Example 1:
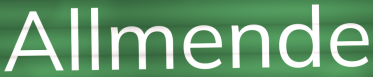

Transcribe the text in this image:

Allmende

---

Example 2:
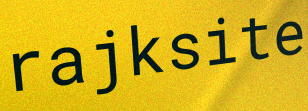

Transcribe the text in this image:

rajksite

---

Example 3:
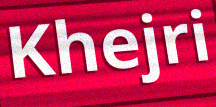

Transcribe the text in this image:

Khejri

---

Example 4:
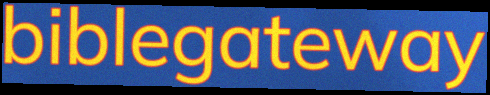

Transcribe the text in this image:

biblegateway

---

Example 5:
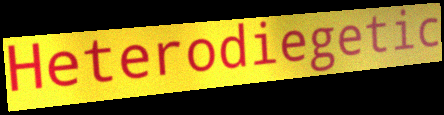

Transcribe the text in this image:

Heterodiegetic